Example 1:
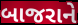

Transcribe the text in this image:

બાજરાને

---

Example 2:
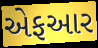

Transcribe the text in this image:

એફઆર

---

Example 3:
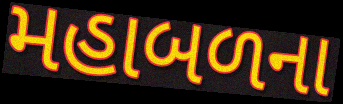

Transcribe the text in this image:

મહાબળના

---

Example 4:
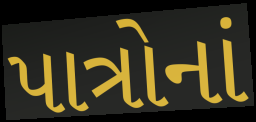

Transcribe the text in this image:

પાત્રોનાં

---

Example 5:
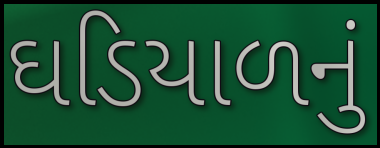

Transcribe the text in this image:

ઘડિયાળનું